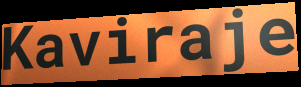
Kaviraje